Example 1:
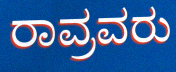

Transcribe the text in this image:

ರಾವ್ರವರು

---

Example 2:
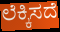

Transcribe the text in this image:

ಲೆಕ್ಕಿಸದೆ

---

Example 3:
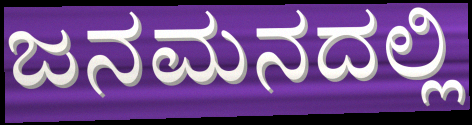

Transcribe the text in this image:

ಜನಮನದಲ್ಲಿ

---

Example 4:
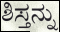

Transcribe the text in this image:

ಶಿಸ್ತನ್ನು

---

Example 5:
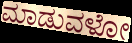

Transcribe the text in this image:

ಮಾಡುವಳೋ